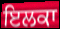
ਇਲਕਾ